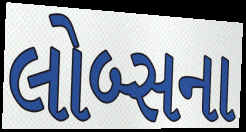
લોબ્સના